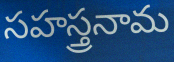
సహస్త్రనామ